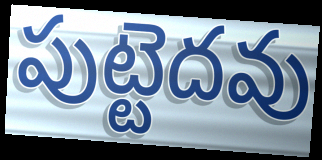
పుట్టెదవు